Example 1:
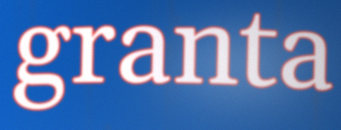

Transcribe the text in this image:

granta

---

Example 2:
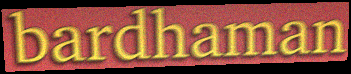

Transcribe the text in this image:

bardhaman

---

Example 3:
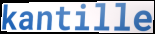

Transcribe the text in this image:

kantille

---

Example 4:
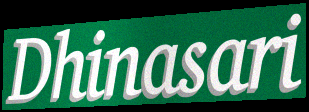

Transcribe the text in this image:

Dhinasari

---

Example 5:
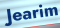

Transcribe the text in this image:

Jearim